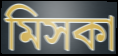
মিসকা